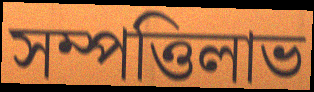
সম্পত্তিলাভ